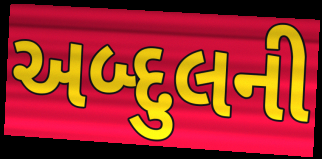
અબ્દુલની